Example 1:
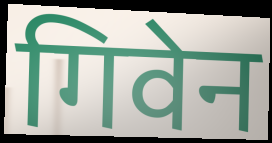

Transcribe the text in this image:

गिवेन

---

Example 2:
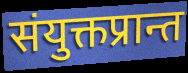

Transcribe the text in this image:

संयुक्तप्रान्त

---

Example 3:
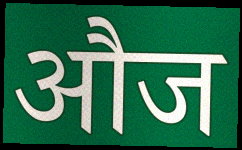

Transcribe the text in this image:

औज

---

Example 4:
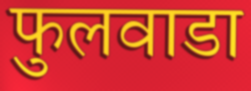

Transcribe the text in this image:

फुलवाडा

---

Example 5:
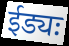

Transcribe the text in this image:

ईड्यः